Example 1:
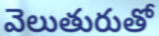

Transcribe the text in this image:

వెలుతురుతో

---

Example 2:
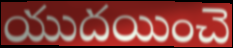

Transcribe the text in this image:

యుదయించె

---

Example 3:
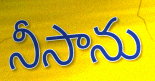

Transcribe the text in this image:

నీసాను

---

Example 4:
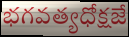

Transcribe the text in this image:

భగవత్యధోక్షజే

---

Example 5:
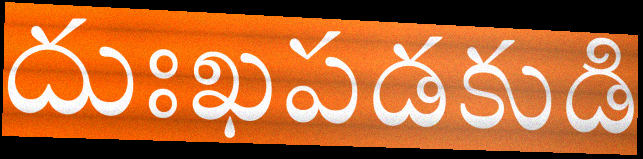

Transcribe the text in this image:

దుఃఖపడకుడి